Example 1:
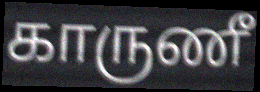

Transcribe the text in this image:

காருணீ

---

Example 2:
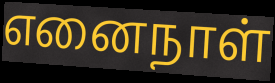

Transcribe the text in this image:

எனைநாள்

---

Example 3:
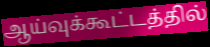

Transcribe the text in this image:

ஆய்வுக்கூட்டத்தில்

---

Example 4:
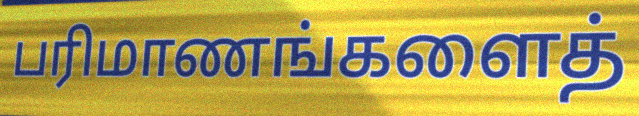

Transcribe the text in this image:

பரிமாணங்களைத்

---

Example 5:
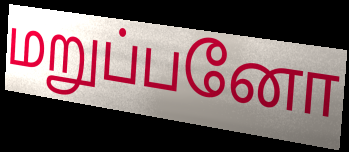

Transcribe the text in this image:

மறுப்பனோ